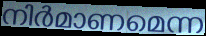
നിർമാണമെന്ന